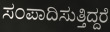
ಸಂಪಾದಿಸುತ್ತಿದ್ದರೆ